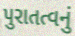
પુરાતત્વનું